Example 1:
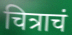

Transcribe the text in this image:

चित्राचं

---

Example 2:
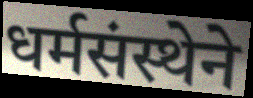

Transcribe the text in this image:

धर्मसंस्थेने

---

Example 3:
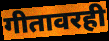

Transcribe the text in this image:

गीतावरही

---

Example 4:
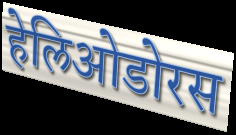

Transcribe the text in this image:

हेलिओडोरस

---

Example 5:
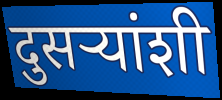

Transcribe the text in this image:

दुसर्‍यांशी